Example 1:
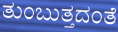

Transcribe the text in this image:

ತುಂಬುತ್ತದಂತೆ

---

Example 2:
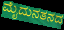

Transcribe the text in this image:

ಮೈದುನತನದ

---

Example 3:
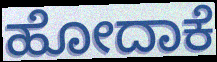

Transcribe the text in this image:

ಹೋದಾಕೆ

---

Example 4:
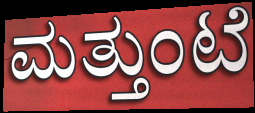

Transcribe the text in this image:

ಮತ್ತುಂಟೆ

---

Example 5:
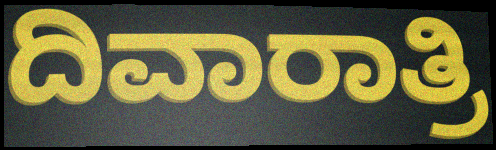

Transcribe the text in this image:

ದಿವಾರಾತ್ರಿ